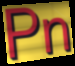
Pn